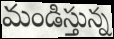
మండిస్తున్న